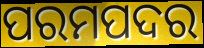
ପରମପଦର